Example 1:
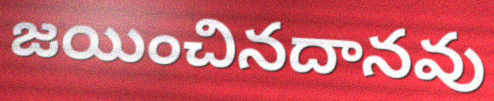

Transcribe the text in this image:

జయించినదానవు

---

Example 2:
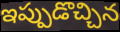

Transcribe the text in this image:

ఇప్పుడొచ్చిన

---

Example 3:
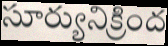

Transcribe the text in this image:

సూర్యునిక్రింద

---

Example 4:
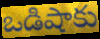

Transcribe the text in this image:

ఒడిషాకు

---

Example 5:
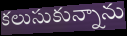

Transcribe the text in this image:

కలుసుకున్నాను